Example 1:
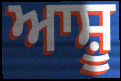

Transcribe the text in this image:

ਆਸ਼ੂ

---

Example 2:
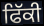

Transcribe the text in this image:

ਫਿੱਕੀ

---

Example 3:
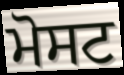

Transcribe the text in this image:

ਮੋਸਟ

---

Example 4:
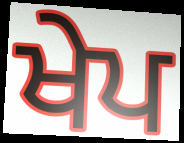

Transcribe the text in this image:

ਖੇਪ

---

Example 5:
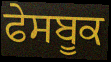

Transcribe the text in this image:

ਫੇਸਬੂਕ